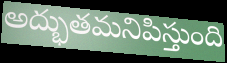
అద్భుతమనిపిస్తుంది